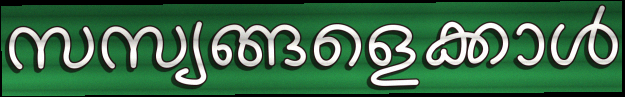
സസ്യങ്ങളെക്കാൾ